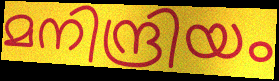
മനിന്ദ്രിയം